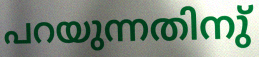
പറയുന്നതിനു്